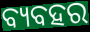
ବ୍ଯବହର